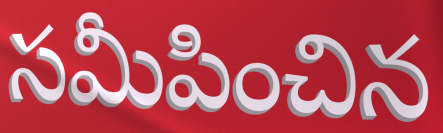
సమీపించిన